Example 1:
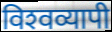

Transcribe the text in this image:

विश्‍वव्यापी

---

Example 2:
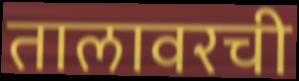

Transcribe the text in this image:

तालावरची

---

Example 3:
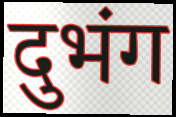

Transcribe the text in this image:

दुभंग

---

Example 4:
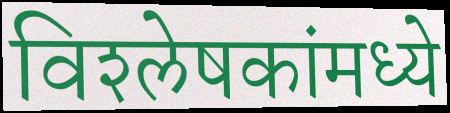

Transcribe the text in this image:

विश्लेषकांमध्ये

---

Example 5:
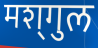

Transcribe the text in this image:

मश्गुल